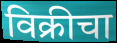
विक्रीचा